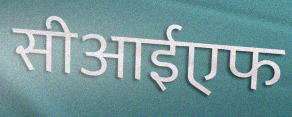
सीआईएफ